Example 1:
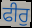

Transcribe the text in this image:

ਫੀਰੁ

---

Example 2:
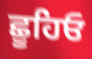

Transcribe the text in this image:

ਛੂਹਿਓ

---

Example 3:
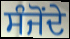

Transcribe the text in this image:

ਸੰਜੋਂਦੇ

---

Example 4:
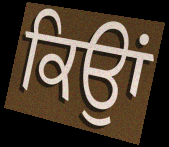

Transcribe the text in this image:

ਕਿਉਾਂ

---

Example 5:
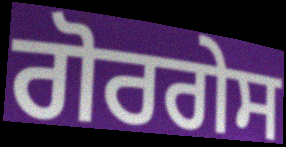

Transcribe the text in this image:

ਗੋਰਗੇਸ